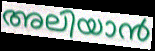
അലിയാൻ